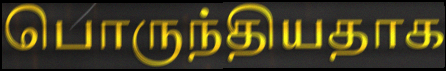
பொருந்தியதாக